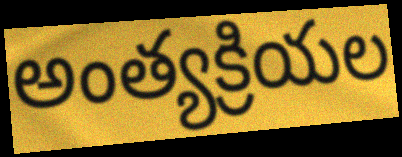
అంత్యక్రియల